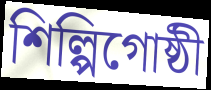
শিল্পিগোষ্ঠী